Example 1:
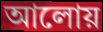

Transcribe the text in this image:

আলোয়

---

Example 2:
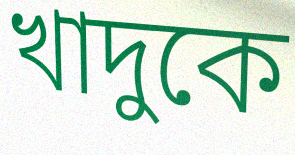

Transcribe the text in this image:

খাদুকে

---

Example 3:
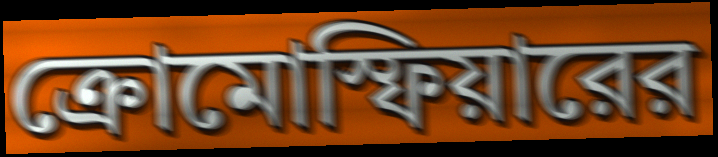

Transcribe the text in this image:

ক্রোমোস্ফিয়ারের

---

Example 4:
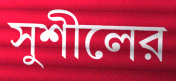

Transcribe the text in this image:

সুশীলের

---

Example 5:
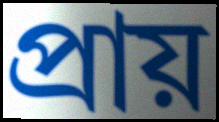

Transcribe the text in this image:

প্রায়